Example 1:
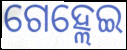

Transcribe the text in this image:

ଗେହ୍ଲେଇ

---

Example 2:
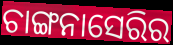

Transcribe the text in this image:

ଚାଙ୍ଗନାସେରିର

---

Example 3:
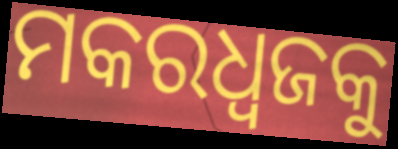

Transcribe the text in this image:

ମକରଧ୍ୱଜକୁ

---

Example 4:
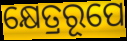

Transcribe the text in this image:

କ୍ଷେତ୍ରରୂପେ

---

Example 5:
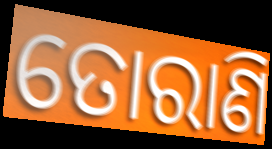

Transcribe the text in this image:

ତୋରାଣି